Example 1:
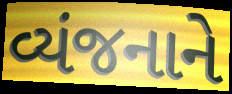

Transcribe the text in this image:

વ્યંજનાને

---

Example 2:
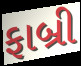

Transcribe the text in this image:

ફાબ્રી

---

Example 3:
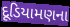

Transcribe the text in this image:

દૂડિયામણના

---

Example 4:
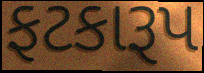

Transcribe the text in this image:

ફટકારૂપ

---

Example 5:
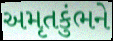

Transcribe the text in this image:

અમૃતકુંભને